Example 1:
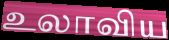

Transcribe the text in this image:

உலாவிய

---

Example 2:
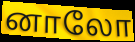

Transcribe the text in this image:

னாலோ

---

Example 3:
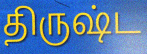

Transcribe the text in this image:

திருஷ்ட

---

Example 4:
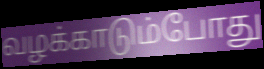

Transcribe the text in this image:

வழக்காடும்போது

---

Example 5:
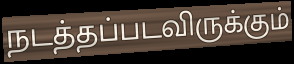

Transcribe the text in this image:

நடத்தப்படவிருக்கும்